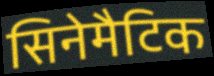
सिनेमैटिक